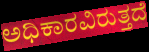
ಅಧಿಕಾರವಿರುತ್ತದೆ